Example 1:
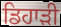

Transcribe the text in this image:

ਡਿਹਾੜੀ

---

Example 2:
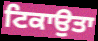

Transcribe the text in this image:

ਟਿਕਾਉਤਾ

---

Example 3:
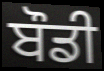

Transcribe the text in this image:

ਬੌਡੀ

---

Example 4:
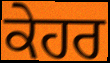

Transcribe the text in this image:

ਕੇਹਰ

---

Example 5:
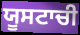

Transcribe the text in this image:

ਯੂਸਟਾਚੀ